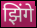
झिंगे